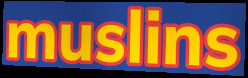
muslins